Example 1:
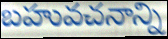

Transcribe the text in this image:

బహువచనాన్ని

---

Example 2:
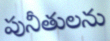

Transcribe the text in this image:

పునీతులను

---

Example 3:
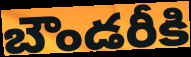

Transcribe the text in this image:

బౌండరీకి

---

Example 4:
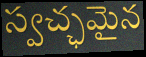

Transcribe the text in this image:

స్వచ్ఛమైన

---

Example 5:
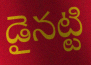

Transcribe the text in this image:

డైనట్టి